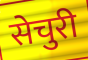
सेचुरी